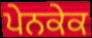
ਪੇਨਕੇਕ